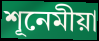
শূনেমীয়া